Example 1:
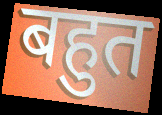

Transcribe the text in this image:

बहुत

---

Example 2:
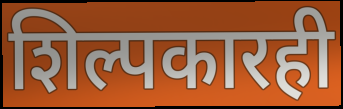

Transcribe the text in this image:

शिल्पकारही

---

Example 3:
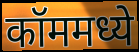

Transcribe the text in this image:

कॉममध्ये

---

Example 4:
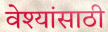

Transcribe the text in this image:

वेश्यांसाठी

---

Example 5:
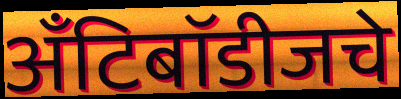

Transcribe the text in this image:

अँटिबॉडीजचे